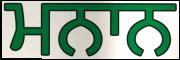
ਮਨਾਨ